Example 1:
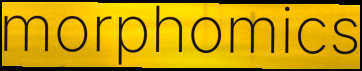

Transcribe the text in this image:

morphomics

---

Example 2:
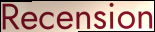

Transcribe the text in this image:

Recension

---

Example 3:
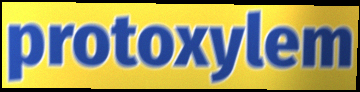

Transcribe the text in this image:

protoxylem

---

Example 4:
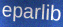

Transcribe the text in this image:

eparlib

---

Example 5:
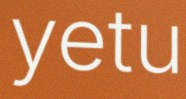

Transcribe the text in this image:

yetu